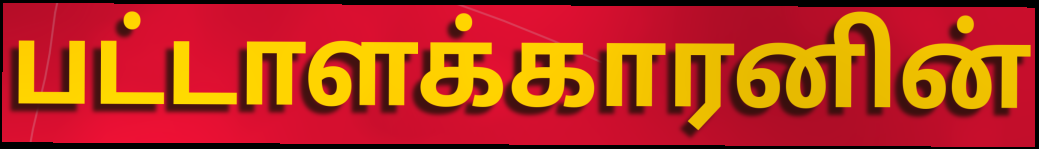
பட்டாளக்காரனின்